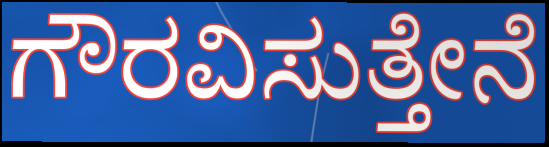
ಗೌರವಿಸುತ್ತೇನೆ